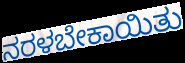
ನರಳಬೇಕಾಯಿತು